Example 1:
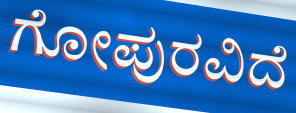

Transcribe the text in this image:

ಗೋಪುರವಿದೆ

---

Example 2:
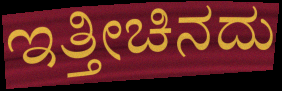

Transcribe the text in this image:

ಇತ್ತೀಚಿನದು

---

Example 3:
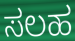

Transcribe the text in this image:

ಸಲಹ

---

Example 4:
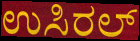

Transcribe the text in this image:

ಉಸಿರಲ್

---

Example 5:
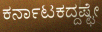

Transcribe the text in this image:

ಕರ್ನಾಟಕದ್ದಷ್ಟೇ